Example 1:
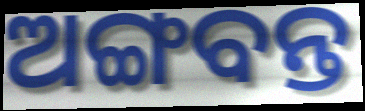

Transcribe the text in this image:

ଅଙ୍ଗବନ୍ତ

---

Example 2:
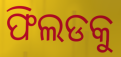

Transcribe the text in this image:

ଫିଲଡକୁ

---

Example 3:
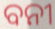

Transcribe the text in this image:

ବନୀ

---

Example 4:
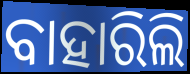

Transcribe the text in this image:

ବାହାରିଲି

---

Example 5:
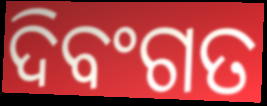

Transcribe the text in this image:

ଦିବଂଗତ